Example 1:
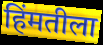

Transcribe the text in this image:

हिंमतीला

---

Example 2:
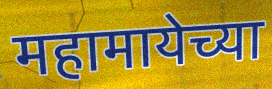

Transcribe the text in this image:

महामायेच्या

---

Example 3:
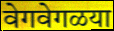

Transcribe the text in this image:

वेगवेगळया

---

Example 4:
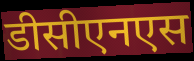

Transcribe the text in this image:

डीसीएनएस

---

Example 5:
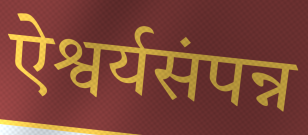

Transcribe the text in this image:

ऐश्वर्यसंपन्न